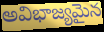
అవిభాజ్యమైన